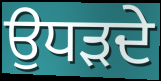
ਉਧੜਦੇ